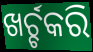
ଖର୍ଚ୍ଚକରି